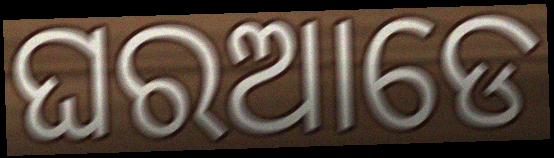
ଘରଆଡେ